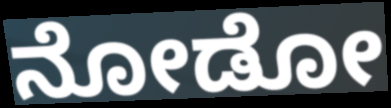
ನೋಡೋ